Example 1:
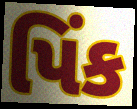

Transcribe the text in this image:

પિંક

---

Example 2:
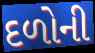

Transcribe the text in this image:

દળોની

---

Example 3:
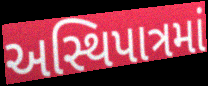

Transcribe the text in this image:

અસ્થિપાત્રમાં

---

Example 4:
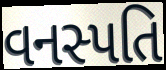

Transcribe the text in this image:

વનસ્પતિ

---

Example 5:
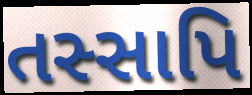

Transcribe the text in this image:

તસ્સાપિ